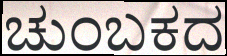
ಚುಂಬಕದ